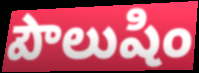
పౌలుషిం